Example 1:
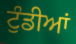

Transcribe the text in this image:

ਟੁੰਡੀਆਂ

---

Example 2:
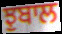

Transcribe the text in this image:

ਝੁਬਾਲ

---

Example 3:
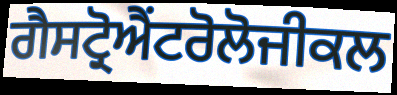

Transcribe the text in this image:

ਗੈਸਟ੍ਰੋਐਂਟਰੋਲੋਜੀਕਲ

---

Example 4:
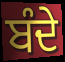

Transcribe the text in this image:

ਬੰਦੇ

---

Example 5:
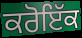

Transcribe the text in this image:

ਕਰੋਇੱਕ